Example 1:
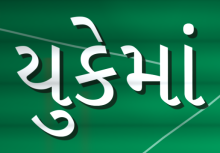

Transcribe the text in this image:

યુકેમાં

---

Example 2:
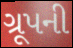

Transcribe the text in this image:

ગ્રૂપની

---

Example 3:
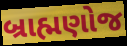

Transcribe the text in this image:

બ્રાહ્મણોજ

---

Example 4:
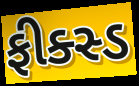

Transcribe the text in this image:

ફીક્સ્ડ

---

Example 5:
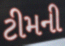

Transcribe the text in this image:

ટીમની